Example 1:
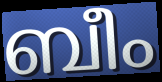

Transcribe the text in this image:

ബീം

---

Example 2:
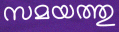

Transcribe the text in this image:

സമയത്തു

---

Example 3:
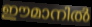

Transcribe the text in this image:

ഈമാനിൽ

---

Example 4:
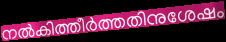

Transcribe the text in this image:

നൽകിത്തീർത്തതിനുശേഷം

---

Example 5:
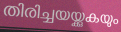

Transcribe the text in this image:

തിരിച്ചയയ്ക്കുകയും